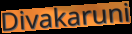
Divakaruni